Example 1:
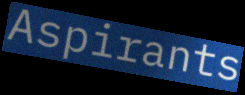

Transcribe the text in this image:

Aspirants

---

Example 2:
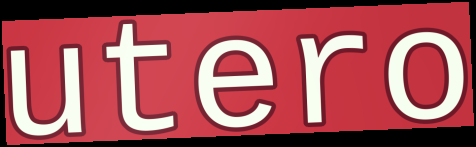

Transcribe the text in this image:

utero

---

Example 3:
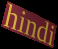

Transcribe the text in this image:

hindi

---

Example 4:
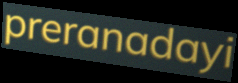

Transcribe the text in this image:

preranadayi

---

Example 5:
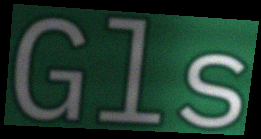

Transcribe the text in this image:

Gls